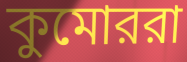
কুমোররা